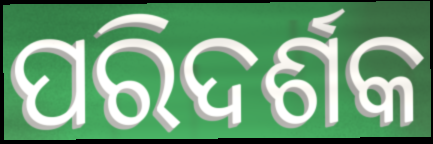
ପରିଦର୍ଶକ